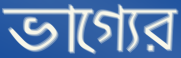
ভাগ্যের